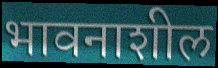
भावनाशील